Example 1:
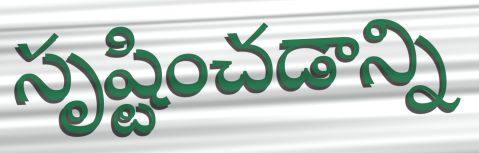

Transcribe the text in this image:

సృష్టించడాన్ని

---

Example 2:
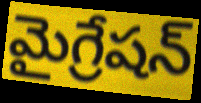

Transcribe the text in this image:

మైగ్రేషన్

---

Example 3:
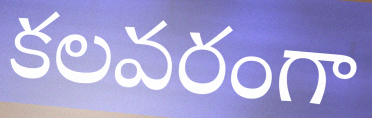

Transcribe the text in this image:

కలవరంగా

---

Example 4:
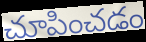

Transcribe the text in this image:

చూపించడం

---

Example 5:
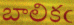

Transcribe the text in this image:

బాలికఁ